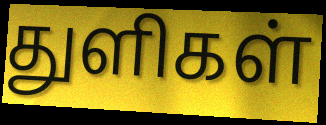
துளிகள்